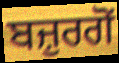
ਬਜ਼ੁਰਗੋਂ